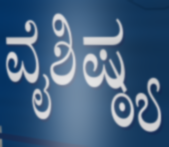
ವೈಶಿಷ್ಠ್ಯ